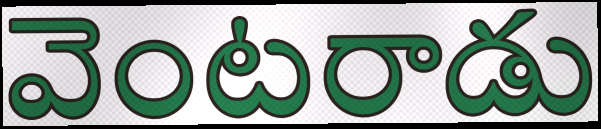
వెంటరాడు